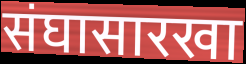
संघासारखा